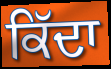
ਕਿੱਦਾ